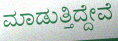
ಮಾಡುತ್ತಿದ್ದೇವೆ